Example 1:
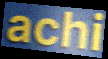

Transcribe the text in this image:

achi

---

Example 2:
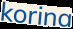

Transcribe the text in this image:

korina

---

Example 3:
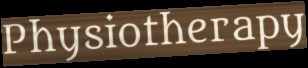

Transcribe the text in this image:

Physiotherapy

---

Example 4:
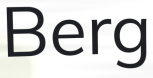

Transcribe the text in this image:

Berg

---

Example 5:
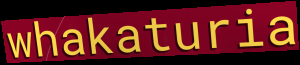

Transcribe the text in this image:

whakaturia